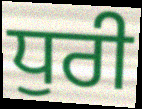
ਧੁਰੀ